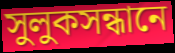
সুলুকসন্ধানে